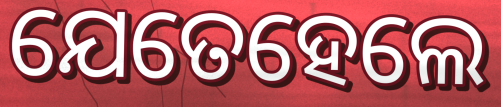
ଯେତେହେଲେ